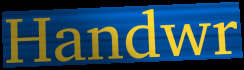
Handwr